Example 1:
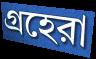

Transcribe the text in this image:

গ্রহেরা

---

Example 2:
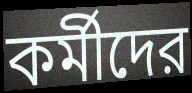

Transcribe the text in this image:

কর্মীদের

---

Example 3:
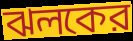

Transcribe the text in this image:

ঝলকের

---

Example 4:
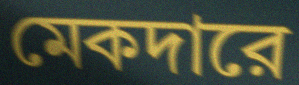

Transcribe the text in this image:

মেকদারে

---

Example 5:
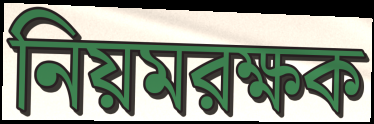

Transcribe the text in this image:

নিয়মরক্ষক